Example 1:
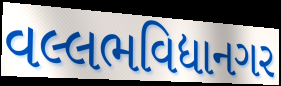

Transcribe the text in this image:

વલ્લભવિદ્યાનગર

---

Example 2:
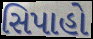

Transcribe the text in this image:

સિપાહો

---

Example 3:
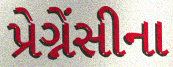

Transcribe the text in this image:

પ્રેગ્નેંસીના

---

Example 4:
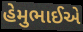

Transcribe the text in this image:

હેમુભાઈએ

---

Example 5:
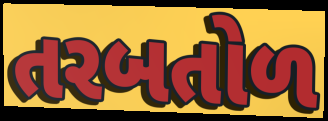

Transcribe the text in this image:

તરબતોળ